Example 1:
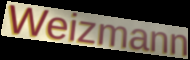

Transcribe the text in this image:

Weizmann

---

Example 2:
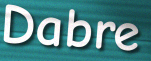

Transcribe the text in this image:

Dabre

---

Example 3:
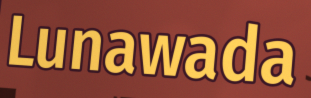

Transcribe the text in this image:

Lunawada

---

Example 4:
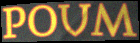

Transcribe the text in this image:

POUM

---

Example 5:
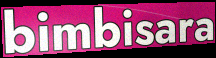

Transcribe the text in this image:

bimbisara